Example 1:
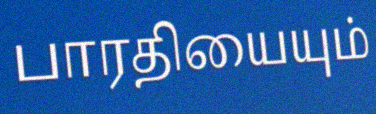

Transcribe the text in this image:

பாரதியையும்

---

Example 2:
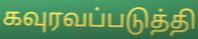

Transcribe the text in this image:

கவுரவப்படுத்தி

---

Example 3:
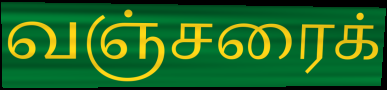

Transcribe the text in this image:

வஞ்சரைக்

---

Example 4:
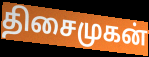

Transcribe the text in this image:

திசைமுகன்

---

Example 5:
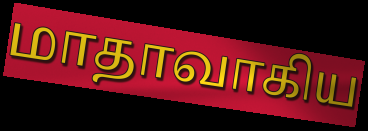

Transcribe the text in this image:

மாதாவாகிய